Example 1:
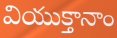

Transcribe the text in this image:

వియుక్తానాం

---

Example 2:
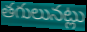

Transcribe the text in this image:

తగులునట్లు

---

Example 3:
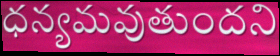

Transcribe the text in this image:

ధన్యమవుతుందని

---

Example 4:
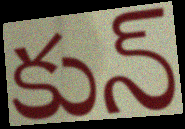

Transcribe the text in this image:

కున్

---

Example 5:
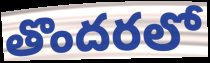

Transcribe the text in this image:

తొందరలో